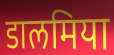
डालमिया